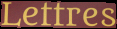
Lettres